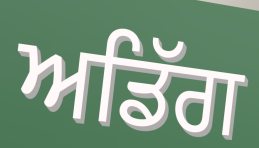
ਅਡਿੱਗ